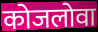
कोजलोवा